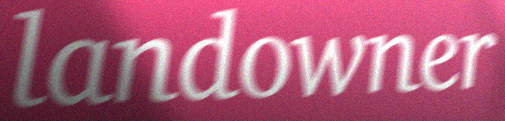
landowner